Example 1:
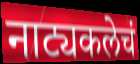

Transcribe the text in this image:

नाट्यकलेचं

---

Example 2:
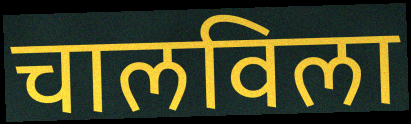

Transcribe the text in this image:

चालविला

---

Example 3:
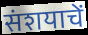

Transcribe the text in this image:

संशयाचें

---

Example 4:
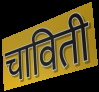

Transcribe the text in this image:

चाविती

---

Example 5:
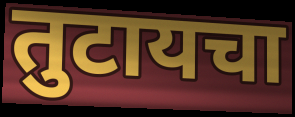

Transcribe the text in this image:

तुटायचा